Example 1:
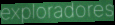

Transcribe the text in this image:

exploradores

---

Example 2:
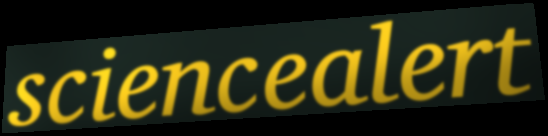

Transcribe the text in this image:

sciencealert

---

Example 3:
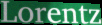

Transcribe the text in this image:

Lorentz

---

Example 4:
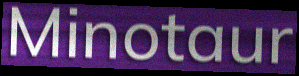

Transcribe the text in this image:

Minotaur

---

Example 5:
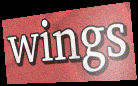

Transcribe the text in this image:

wings